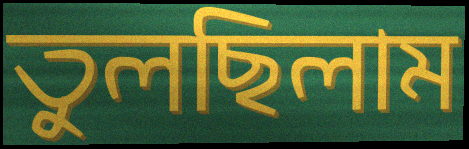
তুলছিলাম